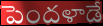
పెందళాడే